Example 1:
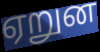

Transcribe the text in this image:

ஏறுன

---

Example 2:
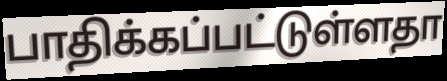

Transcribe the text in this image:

பாதிக்கப்பட்டுள்ளதா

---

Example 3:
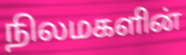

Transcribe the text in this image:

நிலமகளின்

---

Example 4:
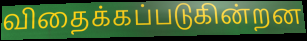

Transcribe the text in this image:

விதைக்கப்படுகின்றன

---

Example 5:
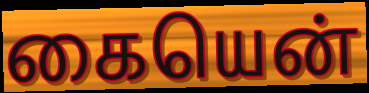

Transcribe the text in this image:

கையென்